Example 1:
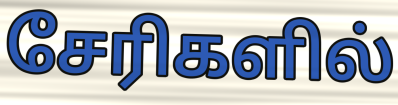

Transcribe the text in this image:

சேரிகளில்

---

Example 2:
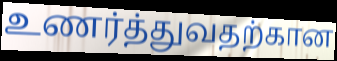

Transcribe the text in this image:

உணர்த்துவதற்கான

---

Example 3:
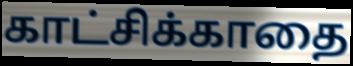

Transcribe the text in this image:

காட்சிக்காதை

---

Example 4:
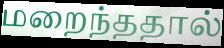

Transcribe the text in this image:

மறைந்ததால்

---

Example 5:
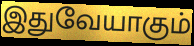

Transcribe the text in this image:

இதுவேயாகும்